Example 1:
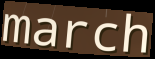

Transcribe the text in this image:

march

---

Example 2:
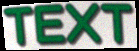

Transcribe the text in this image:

TEXT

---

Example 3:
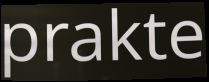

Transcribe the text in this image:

prakte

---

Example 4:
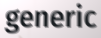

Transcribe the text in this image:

generic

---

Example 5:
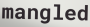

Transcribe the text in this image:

mangled